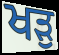
ਖੜੁ